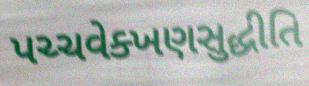
પચ્ચવેક્ખણસુદ્ધીતિ